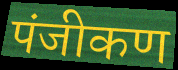
पंजीकण